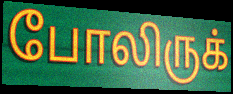
போலிருக்